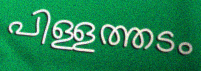
പിള്ളത്തടം